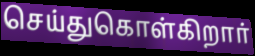
செய்துகொள்கிறார்